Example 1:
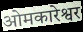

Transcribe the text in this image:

ओमकारेश्वर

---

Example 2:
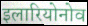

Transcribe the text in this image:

इलारियोनोव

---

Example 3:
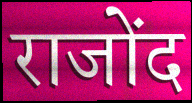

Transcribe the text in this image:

राजोंद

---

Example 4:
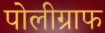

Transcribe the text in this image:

पोलीग्राफ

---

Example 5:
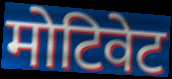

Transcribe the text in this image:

मोटिवेट